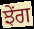
ਝੇਂਗ